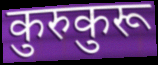
कुरुकुरू